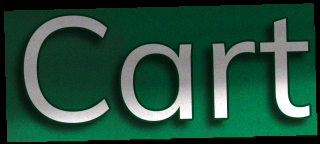
Cart